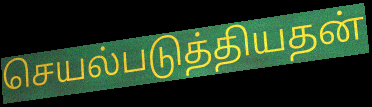
செயல்படுத்தியதன்